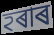
হৰাৰ